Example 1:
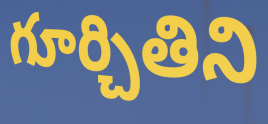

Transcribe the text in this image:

గూర్చితిని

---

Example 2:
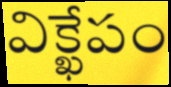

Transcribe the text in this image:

విక్ఖేపం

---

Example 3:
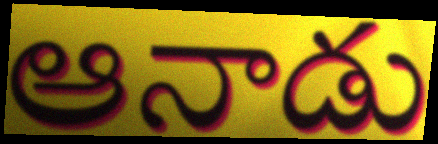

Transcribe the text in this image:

ఆనాడు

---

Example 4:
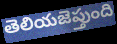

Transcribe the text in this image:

తెలియజెప్తుంది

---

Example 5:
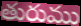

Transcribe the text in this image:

తురుము